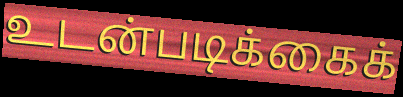
உடன்படிக்கைக்